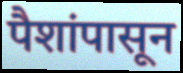
पैशांपासून